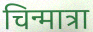
चिन्मात्रा